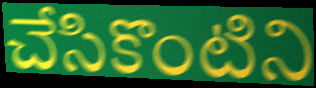
చేసికొంటిని